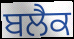
ਬਲੈਕ